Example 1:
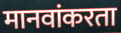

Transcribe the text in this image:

मानवांकरता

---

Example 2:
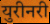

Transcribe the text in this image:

युरीनरी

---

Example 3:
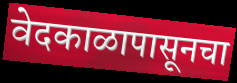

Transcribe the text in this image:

वेदकाळापासूनचा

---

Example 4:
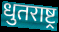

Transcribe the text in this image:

धुतराष्ट्र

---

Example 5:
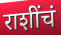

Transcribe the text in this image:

राशींचं